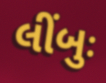
લીંબુઃ